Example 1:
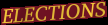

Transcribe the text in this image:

ELECTIONS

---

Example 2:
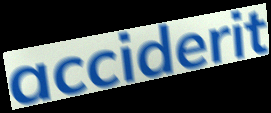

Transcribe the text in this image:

acciderit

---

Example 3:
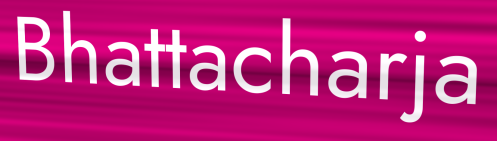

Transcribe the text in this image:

Bhattacharja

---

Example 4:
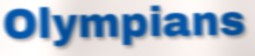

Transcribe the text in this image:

Olympians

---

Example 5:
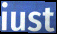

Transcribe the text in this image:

iust